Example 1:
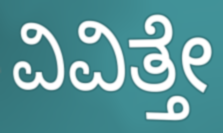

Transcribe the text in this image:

ವಿವಿತ್ತೇ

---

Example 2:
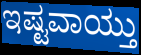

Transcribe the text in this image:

ಇಷ್ಟವಾಯ್ತು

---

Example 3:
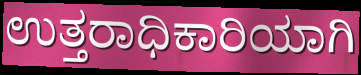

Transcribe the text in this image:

ಉತ್ತರಾಧಿಕಾರಿಯಾಗಿ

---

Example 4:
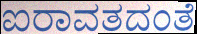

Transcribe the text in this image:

ಐರಾವತದಂತೆ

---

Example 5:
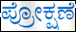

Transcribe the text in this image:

ಪ್ರೋಕ್ಷಣೆ